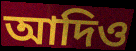
আদিও